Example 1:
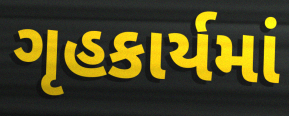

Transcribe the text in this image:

ગૃહકાર્યમાં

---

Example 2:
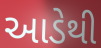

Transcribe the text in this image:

આડેથી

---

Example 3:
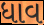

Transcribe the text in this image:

ધાવ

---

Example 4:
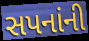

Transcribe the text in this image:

સપનાંની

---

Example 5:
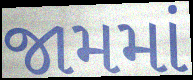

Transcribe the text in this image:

જામમાં